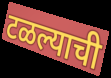
टळल्याची